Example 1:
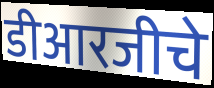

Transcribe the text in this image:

डीआरजीचे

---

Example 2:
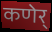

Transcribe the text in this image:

कणेर्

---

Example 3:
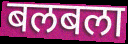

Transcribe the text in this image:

बलबला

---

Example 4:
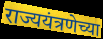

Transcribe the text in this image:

राज्ययंत्रणेच्या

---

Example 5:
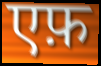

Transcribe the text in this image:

एफ़